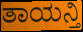
ತಾಯನ್ತಿ